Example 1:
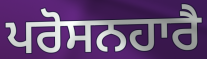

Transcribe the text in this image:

ਪਰੋਸਨਹਾਰੈ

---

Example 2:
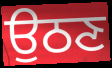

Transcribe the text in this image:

ਉਠਣ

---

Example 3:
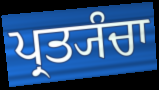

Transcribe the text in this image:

ਪ੍ਰਤ੍ਯੰਚਾ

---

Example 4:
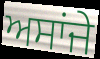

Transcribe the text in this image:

ਅਸਾਂਜੇ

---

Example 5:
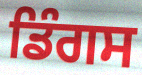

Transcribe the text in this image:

ਡਿੰਗਸ